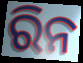
ରିନ